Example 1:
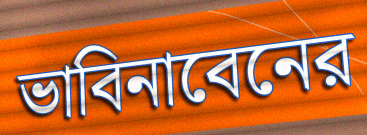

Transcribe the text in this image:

ভাবিনাবেনের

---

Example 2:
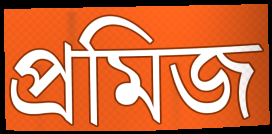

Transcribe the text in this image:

প্রমিজ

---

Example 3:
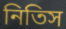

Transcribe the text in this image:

নিতিস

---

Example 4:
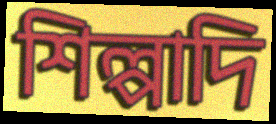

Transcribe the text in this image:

শিল্পাদি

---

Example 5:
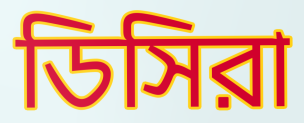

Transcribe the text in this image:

ডিসিরা